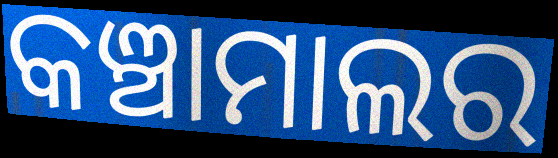
କଞ୍ଚାମାଲର